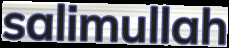
salimullah